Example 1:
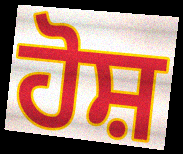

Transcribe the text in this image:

ਹੋਸ਼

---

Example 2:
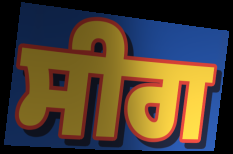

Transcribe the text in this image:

ਸੀਗ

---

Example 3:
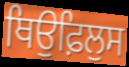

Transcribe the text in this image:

ਥਿਉਫ਼ਿਲੁਸ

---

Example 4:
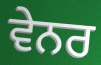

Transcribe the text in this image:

ਵੇਨਰ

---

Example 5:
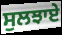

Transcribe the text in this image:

ਸੁਲਝਾਏ